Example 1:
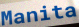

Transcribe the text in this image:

Manita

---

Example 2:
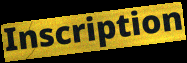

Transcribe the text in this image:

Inscription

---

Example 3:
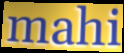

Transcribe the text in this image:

mahi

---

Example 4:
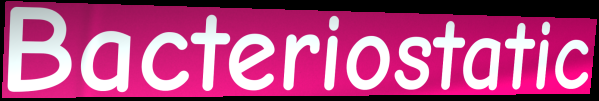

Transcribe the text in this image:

Bacteriostatic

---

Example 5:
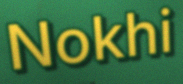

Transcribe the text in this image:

Nokhi